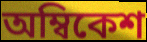
অম্বিকেশ